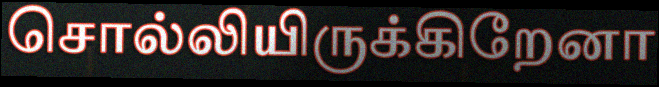
சொல்லியிருக்கிறேனா